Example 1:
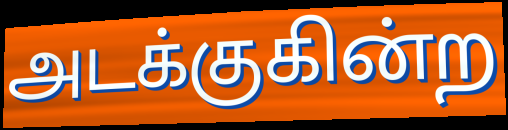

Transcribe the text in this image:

அடக்குகின்ற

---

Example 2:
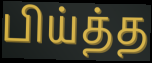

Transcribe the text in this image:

பிய்த்த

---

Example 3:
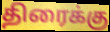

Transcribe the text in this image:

திரைக்கு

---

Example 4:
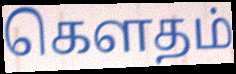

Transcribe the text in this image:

கௌதம்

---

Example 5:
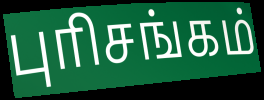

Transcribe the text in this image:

புரிசங்கம்